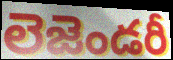
లెజెండరీ